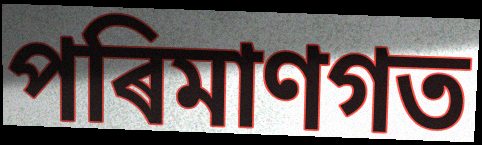
পৰিমাণগত